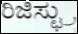
ರಿಜಿಸ್ಟ್ರು